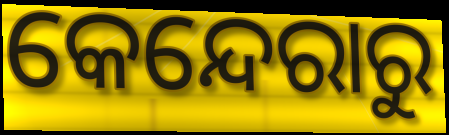
କେନ୍ଦେରାରୁ